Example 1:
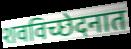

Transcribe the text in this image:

शवविच्छेदनात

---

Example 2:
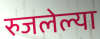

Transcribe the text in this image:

रुजलेल्या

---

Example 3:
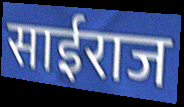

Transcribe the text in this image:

साईराज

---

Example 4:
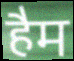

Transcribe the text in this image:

हैम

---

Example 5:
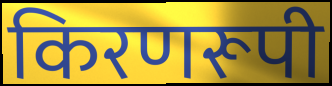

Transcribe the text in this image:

किरणरूपी